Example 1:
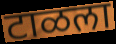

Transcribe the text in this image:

टाळला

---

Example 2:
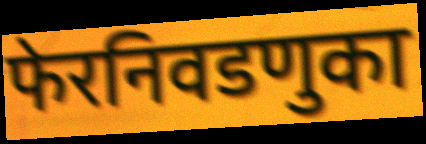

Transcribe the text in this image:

फेरनिवडणुका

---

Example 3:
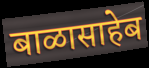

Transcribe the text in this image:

बाळासाहेब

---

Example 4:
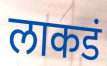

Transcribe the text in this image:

लाकडं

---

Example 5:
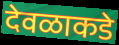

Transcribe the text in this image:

देवळाकडे